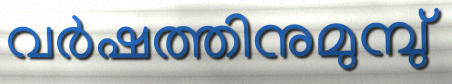
വർഷത്തിനുമുമ്പു്